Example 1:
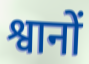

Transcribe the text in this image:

श्वानों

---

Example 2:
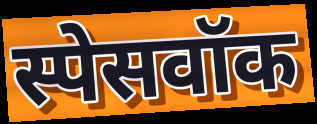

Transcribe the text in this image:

स्पेसवॉक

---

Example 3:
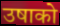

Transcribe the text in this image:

उषाको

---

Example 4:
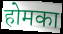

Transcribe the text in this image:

होमका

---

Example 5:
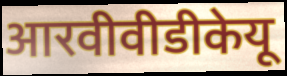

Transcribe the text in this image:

आरवीवीडीकेयू